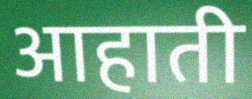
आहाती